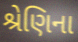
શ્રેણિના